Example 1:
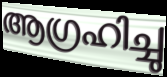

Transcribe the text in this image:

ആഗ്രഹിച്ചു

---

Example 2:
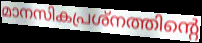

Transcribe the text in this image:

മാനസികപ്രശ്നത്തിന്റെ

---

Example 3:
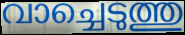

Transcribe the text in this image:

വാച്ചെടുത്തു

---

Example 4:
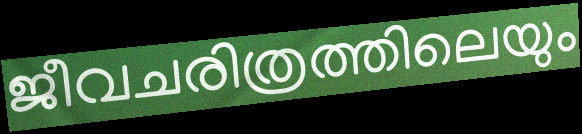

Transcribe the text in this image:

ജീവചരിത്രത്തിലെയും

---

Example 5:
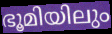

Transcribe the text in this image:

ഭൂമിയിലും